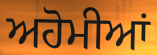
ਅਹੋਮੀਆਂ